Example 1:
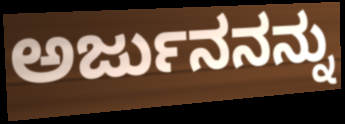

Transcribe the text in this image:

ಅರ್ಜುನನನ್ನು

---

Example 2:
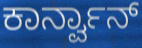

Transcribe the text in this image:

ಕಾರ್ನ್ವಾನ್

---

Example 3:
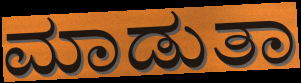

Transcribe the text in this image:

ಮಾಡುತಾ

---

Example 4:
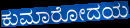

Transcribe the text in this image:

ಕುಮಾರೋದಯ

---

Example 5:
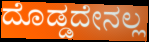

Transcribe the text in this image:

ದೊಡ್ಡದೇನಲ್ಲ